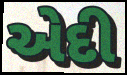
એદી